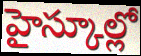
హైస్కూల్లో